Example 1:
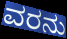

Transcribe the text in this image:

ವರನು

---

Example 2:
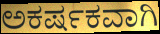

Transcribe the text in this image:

ಅಕರ್ಷಕವಾಗಿ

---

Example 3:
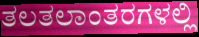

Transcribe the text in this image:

ತಲತಲಾಂತರಗಳಲ್ಲಿ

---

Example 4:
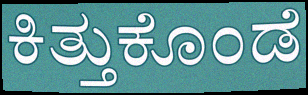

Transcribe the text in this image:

ಕಿತ್ತುಕೊಂಡೆ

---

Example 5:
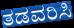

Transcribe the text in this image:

ತಡವರಿಸಿ